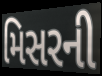
મિસરની